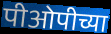
पीओपीच्या